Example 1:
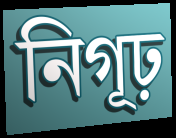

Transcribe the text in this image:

নিগূঢ়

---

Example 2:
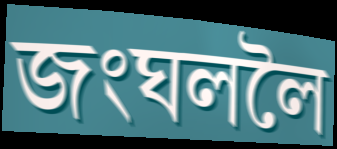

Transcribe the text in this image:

জংঘললৈ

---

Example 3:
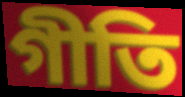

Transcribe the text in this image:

গীতি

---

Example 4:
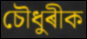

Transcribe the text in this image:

চৌধুৰীক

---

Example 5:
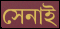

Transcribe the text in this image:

সেনাই